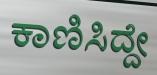
ಕಾಣಿಸಿದ್ದೇ